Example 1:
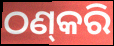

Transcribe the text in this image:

ଠଣ୍‌କରି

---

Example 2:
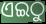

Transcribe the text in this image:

ଏଇଠୁ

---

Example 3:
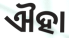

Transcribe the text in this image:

ଐହା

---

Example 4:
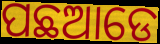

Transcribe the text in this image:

ପଛଆଡେ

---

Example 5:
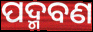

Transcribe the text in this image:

ପଦ୍ମବଣ